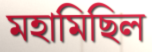
মহামিছিল